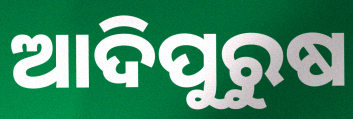
ଆଦିପୁରୁଷ